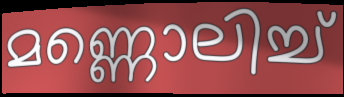
മണ്ണൊലിച്ച്